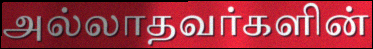
அல்லாதவர்களின்